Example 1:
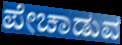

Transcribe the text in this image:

ಪೇಚಾಡುವ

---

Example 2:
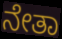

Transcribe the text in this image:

ನೇತಾ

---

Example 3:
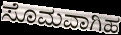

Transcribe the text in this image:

ಸೊಮವಾಗಿಹ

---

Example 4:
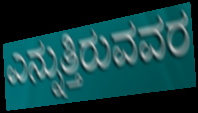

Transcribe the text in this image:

ಎನ್ನುತ್ತಿರುವವರ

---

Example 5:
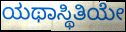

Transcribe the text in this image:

ಯಥಾಸ್ಥಿತಿಯೇ